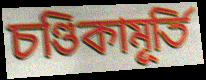
চণ্ডিকামূর্তি